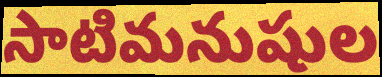
సాటిమనుషుల